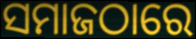
ସମାଜଠାରେ